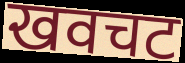
खवचट